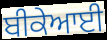
ਬੀਕੇਆਈ